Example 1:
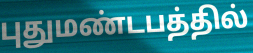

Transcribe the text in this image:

புதுமண்டபத்தில்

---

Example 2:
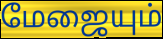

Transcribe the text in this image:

மேஜையும்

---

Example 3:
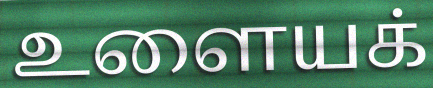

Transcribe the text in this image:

உளையக்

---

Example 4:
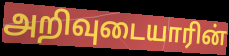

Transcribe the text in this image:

அறிவுடையாரின்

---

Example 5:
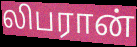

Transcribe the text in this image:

லிபரான்